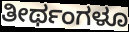
ತೀರ್ಥಂಗಳೂ